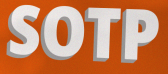
SOTP